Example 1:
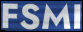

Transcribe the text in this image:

FSMI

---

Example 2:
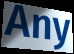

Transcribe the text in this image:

Any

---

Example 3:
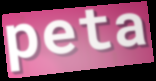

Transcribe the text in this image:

peta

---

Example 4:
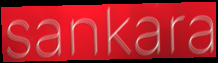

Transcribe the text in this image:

sankara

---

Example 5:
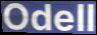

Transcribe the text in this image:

Odell